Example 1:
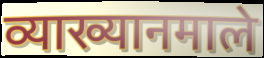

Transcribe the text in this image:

व्याख्यानमाले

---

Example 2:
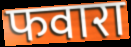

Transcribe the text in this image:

फवारा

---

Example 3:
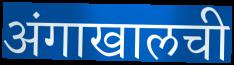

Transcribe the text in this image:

अंगाखालची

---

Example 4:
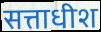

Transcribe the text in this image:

सत्ताधीश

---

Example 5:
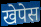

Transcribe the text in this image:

खेपेस